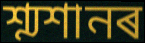
শ্মশানৰ